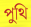
পুথি